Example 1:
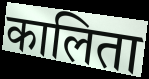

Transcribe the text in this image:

कालिता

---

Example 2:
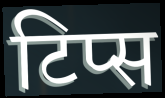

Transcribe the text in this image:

टिप्स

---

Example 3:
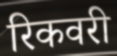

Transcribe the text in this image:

रिकवरी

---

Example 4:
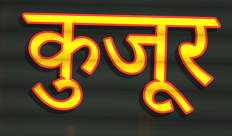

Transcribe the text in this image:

कुजूर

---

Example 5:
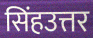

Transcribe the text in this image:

सिंहउत्तर